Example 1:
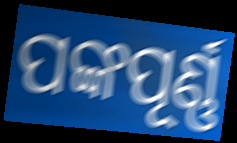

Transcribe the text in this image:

ପଙ୍କପୂର୍ଣ୍ଣ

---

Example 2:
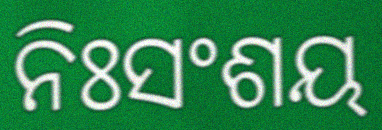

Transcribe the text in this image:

ନିଃସଂଶୟ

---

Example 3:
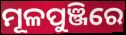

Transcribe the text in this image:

ମୂଳପୁଞ୍ଜିରେ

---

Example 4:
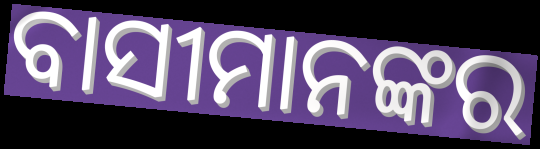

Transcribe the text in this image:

ବାସୀମାନଙ୍କର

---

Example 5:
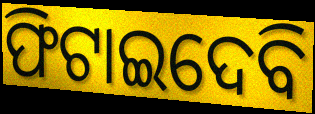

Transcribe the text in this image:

ଫିଟାଇଦେବି